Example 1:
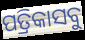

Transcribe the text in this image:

ପତ୍ରିକାସବୁ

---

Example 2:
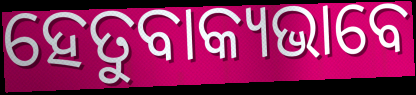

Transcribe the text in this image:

ହେତୁବାକ୍ୟଭାବେ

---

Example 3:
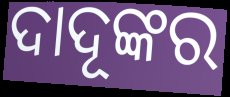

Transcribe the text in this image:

ଦାଦୂଙ୍କର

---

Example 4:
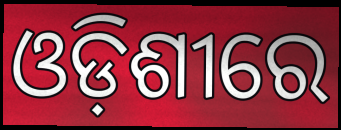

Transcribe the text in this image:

ଓଡ଼ିଶୀରେ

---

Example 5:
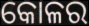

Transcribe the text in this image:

କୋଳର